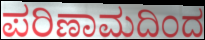
ಪರಿಣಾಮದಿಂದ